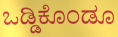
ಒಡ್ಡಿಕೊಂಡೂ